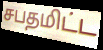
சபதமிட்ட